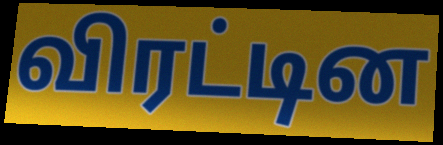
விரட்டின